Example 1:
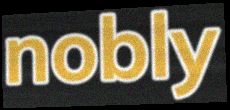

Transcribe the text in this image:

nobly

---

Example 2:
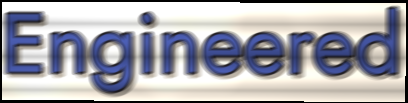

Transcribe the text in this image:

Engineered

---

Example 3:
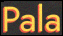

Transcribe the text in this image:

Pala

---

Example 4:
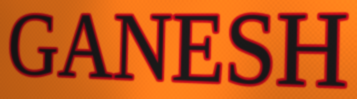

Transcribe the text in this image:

GANESH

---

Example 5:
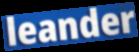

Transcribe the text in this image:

leander